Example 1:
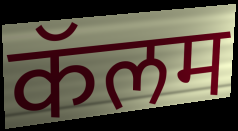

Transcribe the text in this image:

कॅलम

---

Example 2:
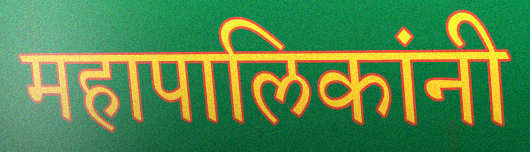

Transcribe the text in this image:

महापालिकांनी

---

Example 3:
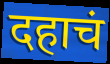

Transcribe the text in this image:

दहाचं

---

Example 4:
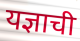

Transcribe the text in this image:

यज्ञाची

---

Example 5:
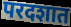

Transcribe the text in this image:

परदशात